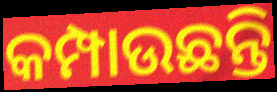
କମ୍ପାଉଛନ୍ତି